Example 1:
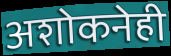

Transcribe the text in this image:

अशोकनेही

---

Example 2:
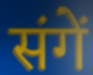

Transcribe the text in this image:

संगें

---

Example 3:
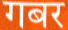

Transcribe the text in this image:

गबर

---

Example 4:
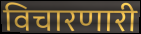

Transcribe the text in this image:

विचारणारी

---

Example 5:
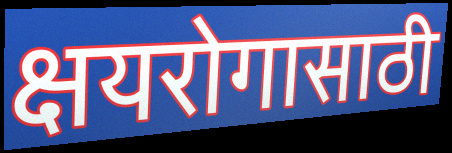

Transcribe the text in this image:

क्षयरोगासाठी